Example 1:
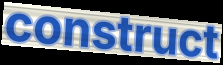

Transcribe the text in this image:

construct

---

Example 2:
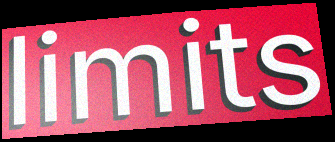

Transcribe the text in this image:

limits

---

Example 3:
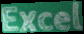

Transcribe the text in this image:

Excel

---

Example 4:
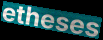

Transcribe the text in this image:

etheses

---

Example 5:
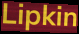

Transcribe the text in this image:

Lipkin